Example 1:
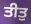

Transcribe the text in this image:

ਤੀਤੁ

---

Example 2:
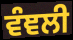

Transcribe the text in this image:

ਵੰਞਲੀ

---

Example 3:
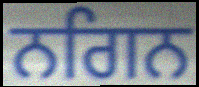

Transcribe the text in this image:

ਨਗਿਨ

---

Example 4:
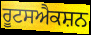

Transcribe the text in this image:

ਰੂਟਸਐਕਸ਼ਨ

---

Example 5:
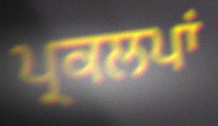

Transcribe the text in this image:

ਪ੍ਰਕਲਪਾਂ